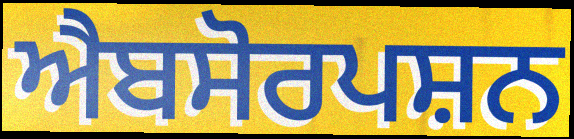
ਐਬਸੋਰਪਸ਼ਨ